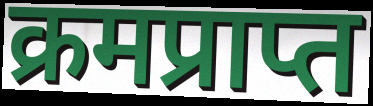
क्रमप्राप्त